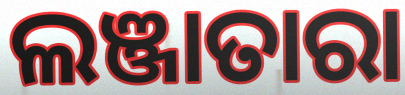
ଲଞ୍ଜାତାରା